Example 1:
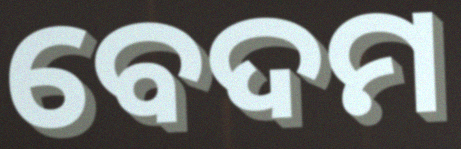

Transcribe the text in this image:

ବେଦମ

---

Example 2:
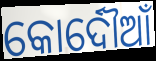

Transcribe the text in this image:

କୋର୍ଦୌଆଁ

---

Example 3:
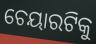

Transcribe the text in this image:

ଚେୟାରଟିକୁ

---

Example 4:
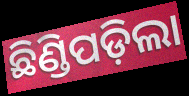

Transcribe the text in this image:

ଛିଣ୍ଡିପଡ଼ିଲା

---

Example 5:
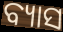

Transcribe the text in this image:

ବ୍ୟାସ